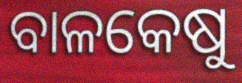
ବାଳକେଷୁ